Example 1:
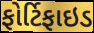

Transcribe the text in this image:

ફોર્ટિફાઇડ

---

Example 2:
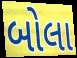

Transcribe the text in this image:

બોલા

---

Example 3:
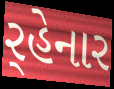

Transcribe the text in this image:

ર્‌હેનાર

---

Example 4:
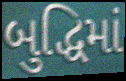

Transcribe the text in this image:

બુદ્ધિમાં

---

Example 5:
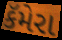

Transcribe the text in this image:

કૅમેરા